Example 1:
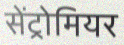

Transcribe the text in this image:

सेंट्रोमियर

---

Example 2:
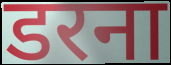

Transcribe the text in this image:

डरना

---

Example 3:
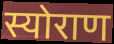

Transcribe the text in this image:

स्योराण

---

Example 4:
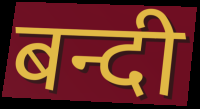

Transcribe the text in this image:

बन्दी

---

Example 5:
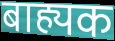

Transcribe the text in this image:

बाह्यक